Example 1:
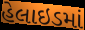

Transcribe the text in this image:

હેલાઇડમાં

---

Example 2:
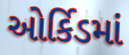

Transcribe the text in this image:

ઓર્કિડમાં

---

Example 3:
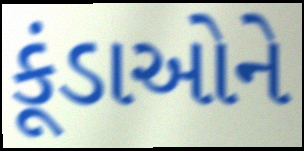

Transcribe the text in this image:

કૂંડાઓને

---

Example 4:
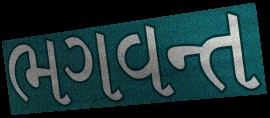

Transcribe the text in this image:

ભગવન્ત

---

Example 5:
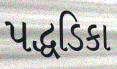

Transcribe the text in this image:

પદ્ધડિકા